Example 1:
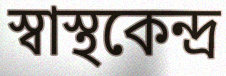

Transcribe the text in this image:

স্বাস্থকেন্দ্র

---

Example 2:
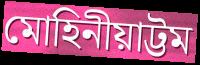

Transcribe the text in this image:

মোহিনীয়াট্টম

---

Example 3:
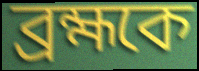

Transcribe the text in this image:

ব্রহ্মকে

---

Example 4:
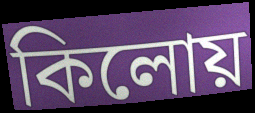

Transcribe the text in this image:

কিলোয়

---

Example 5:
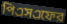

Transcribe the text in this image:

পিএসএফের